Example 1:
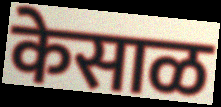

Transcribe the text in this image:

केसाळ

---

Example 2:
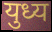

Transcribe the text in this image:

युध्य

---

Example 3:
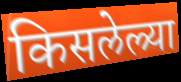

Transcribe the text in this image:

किसलेल्या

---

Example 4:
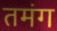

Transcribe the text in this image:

तमंग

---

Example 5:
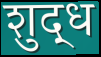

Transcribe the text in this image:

शुद्ध